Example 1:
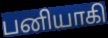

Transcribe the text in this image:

பனியாகி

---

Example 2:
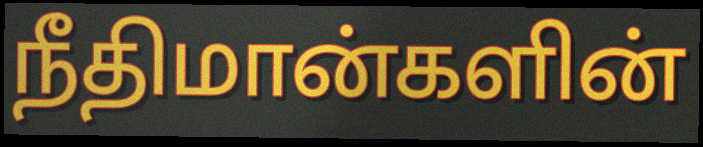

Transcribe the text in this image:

நீதிமான்களின்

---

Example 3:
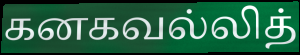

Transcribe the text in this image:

கனகவல்லித்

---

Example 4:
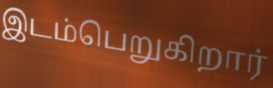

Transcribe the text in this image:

இடம்பெறுகிறார்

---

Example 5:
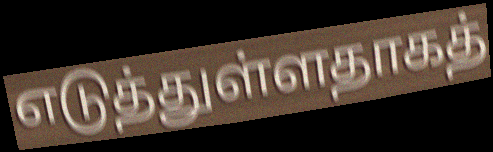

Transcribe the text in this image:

எடுத்துள்ளதாகத்